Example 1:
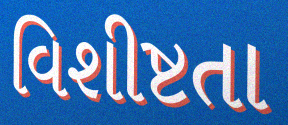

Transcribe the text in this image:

વિશીષ્ટતા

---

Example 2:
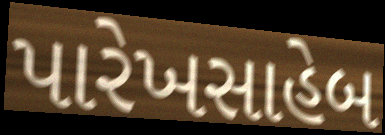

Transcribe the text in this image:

પારેખસાહેબ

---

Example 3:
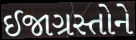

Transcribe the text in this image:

ઈજાગ્રસ્તોને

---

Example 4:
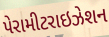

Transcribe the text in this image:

પેરામીટરાઇઝેશન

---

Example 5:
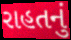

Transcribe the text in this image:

રાહતનું